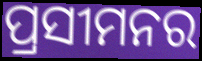
ପ୍ରସୀମନର